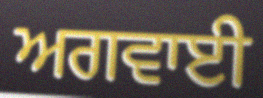
ਅਗਵਾਈ